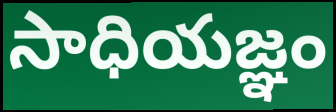
సాధియజ్ఞం